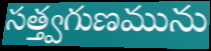
సత్త్వగుణమును